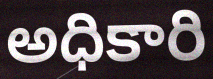
అధికారి